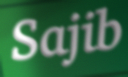
Sajib